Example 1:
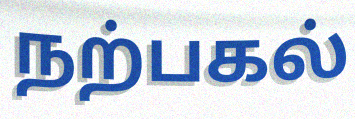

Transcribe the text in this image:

நற்பகல்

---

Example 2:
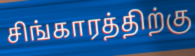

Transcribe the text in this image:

சிங்காரத்திற்கு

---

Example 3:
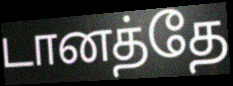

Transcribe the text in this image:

டானத்தே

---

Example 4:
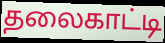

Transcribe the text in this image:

தலைகாட்டி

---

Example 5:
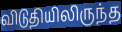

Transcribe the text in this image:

விடுதியிலிருந்த